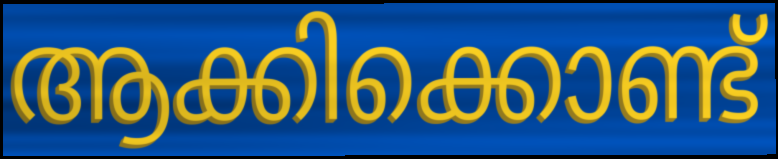
ആക്കിക്കൊണ്ട്